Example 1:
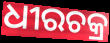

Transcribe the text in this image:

ଧୀରଚକ୍ର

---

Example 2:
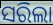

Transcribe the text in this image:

ସରିଲା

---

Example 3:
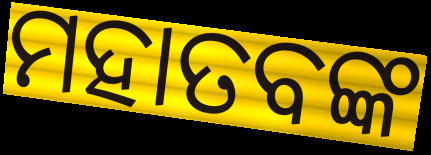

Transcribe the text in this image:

ମହାତବଙ୍କ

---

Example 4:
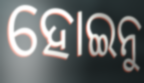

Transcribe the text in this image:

ହୋଇନୁ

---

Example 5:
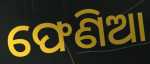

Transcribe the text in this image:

ଫେଣିଆ